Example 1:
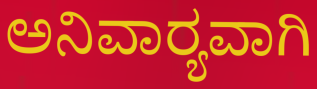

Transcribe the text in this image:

ಅನಿವಾರ‍್ಯವಾಗಿ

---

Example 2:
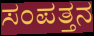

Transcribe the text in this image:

ಸಂಪತ್ತನ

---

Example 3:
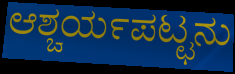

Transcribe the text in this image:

ಆಶ್ಚರ್ಯಪಟ್ಟನು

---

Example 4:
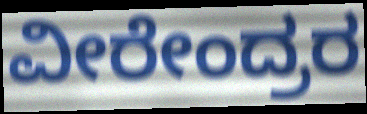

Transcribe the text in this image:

ವೀರೇಂದ್ರರ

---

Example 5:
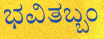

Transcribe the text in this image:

ಭವಿತಬ್ಬಂ